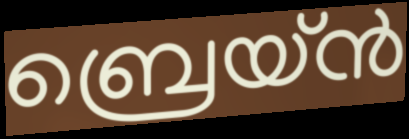
ബ്രെയ്ൻ